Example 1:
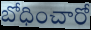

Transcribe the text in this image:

బోధించారో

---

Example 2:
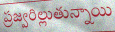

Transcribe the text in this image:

ప్రజ్వరిల్లుతున్నాయి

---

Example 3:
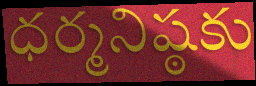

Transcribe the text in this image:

ధర్మనిష్ఠకు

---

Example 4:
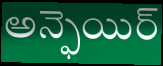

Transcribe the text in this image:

అన్ఫెయిర్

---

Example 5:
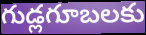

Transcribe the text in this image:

గుడ్లగూబలకు